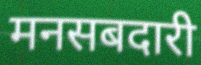
मनसबदारी